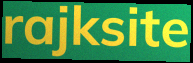
rajksite